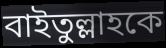
বাইতুল্লাহকে